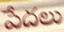
పేదలు